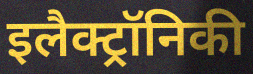
इलैक्ट्रॉनिकी